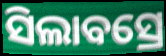
ସିଲାବସ୍ରେ